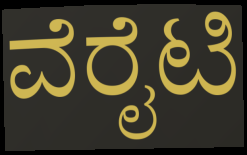
ವೆರೈಟಿ